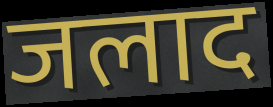
जलाद